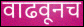
वाढवूनच